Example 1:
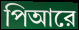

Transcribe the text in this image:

পিআরে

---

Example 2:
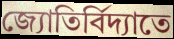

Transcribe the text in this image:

জ্যোতির্বিদ্যাতে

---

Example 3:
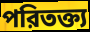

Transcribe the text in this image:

পরিতক্ত্য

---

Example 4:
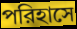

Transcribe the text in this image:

পরিহাসে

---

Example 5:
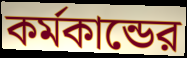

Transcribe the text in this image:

কর্মকান্ডের